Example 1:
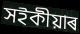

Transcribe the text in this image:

সইকীয়াৰ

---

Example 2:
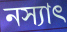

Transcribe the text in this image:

নস্যাৎ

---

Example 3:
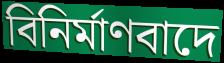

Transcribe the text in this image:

বিনিৰ্মাণবাদে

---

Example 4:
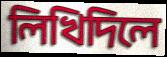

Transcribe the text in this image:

লিখিদিলে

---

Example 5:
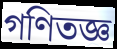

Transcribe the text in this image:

গণিতজ্ঞ